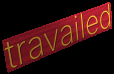
travailed